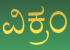
ವಿಕ್ರಂ